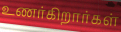
உணர்கிறார்கள்